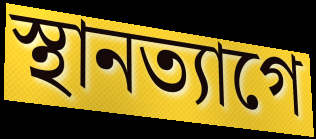
স্থানত্যাগে